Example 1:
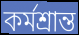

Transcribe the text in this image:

কর্মশ্রান্ত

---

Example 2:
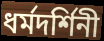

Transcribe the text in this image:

ধর্মদর্শিনী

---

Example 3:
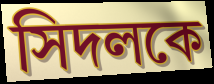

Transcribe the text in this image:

সিদলকে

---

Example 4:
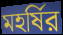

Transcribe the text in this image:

মহর্ষির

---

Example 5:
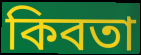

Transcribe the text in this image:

কিবতা